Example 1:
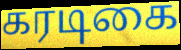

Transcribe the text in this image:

கரடிகை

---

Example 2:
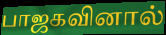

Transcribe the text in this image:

பாஜகவினால்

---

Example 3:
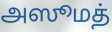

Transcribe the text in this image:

அஸூமத்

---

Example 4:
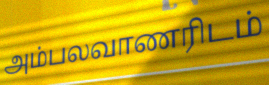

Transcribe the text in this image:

அம்பலவாணரிடம்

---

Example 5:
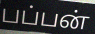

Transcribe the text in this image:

பப்பன்